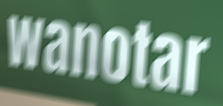
wanotar